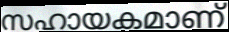
സഹായകമാണ്